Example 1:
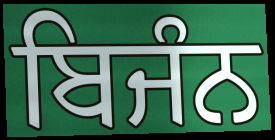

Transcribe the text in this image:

ਬਿਜੰਨ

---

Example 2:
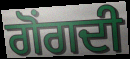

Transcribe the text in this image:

ਗੋਂਗਦੀ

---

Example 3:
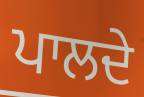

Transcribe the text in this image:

ਪਾਲਦੇ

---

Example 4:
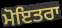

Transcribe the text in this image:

ਮੋਇਤਰਾ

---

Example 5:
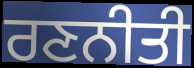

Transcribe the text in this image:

ਰਣਨੀਤੀ